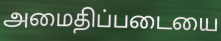
அமைதிப்படையை